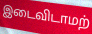
இடைவிடாமற்